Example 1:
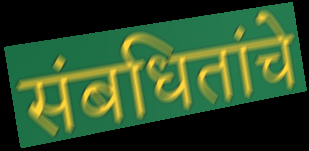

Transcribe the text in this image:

संबधितांचे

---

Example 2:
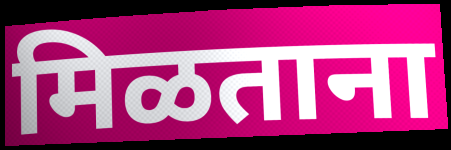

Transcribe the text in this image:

मिळताना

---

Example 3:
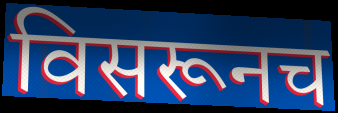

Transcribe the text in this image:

विसरूनच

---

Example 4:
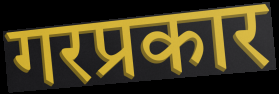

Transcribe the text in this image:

गरप्रकार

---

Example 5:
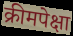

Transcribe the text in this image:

क्रीमपेक्षा